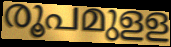
രൂപമുളള